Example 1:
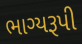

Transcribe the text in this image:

ભાગ્યરૂપી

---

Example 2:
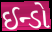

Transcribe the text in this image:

ઈન્ડો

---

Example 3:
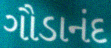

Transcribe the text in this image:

ગૌડાનંદ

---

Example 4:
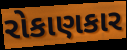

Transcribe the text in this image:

રોકાણકાર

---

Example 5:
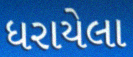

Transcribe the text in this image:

ધરાયેલા